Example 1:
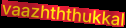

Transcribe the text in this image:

vaazhththukkal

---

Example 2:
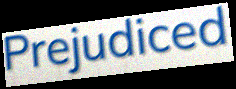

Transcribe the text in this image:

Prejudiced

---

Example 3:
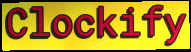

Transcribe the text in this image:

Clockify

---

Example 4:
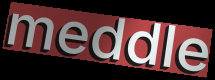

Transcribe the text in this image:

meddle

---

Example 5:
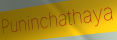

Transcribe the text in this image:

Puninchathaya